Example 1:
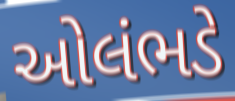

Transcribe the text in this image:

ઓલંભડે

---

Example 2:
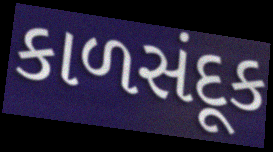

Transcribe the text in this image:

કાળસંદૂક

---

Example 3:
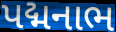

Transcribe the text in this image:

પદ્મનાભ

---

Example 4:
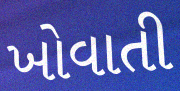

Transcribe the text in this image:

ખોવાતી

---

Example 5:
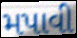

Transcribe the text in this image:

મપાવી